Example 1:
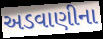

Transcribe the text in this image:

અડવાણીના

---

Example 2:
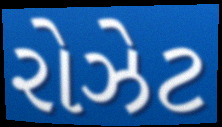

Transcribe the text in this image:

રોઝેટ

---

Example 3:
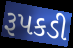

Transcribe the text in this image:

રૂપકડી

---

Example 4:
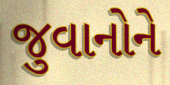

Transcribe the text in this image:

જુવાનોને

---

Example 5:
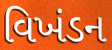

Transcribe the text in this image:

વિખંડન